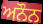
ਅਨੌਨ